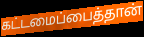
கட்டமைப்பைத்தான்